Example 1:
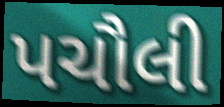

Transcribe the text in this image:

પચૌલી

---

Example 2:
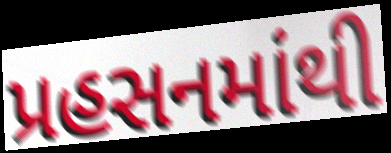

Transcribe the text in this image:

પ્રહસનમાંથી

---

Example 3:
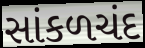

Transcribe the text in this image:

સાંકળચંદ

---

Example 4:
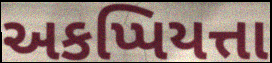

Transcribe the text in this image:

અકપ્પિયત્તા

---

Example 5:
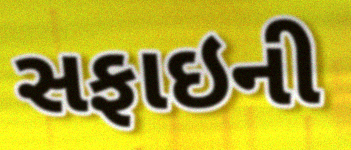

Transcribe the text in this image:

સફાઇની